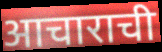
आचाराची